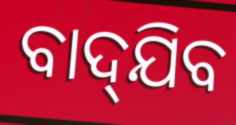
ବାଦ୍‌ଯିବ